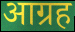
आग्रह